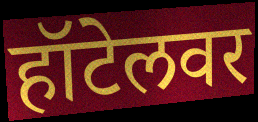
हॉटेलवर